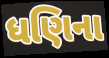
ધણિના